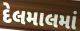
દેલમાલમાં